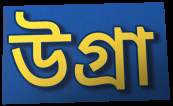
উগ্রা